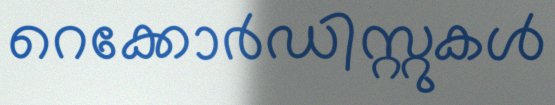
റെക്കോർഡിസ്റ്റുകൾ